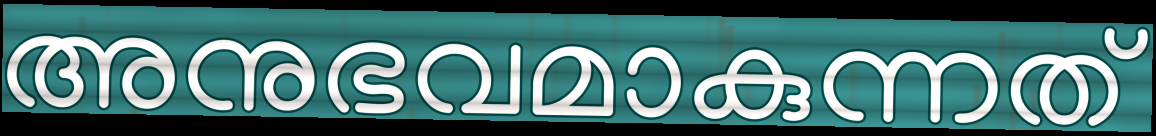
അനുഭവമാകുന്നത്